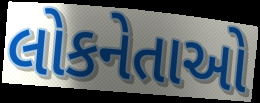
લોકનેતાઓ